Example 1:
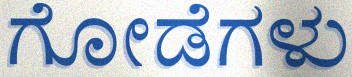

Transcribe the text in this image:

ಗೋಡೆಗಳು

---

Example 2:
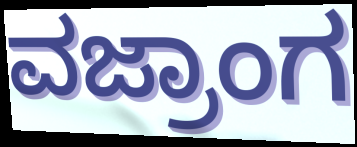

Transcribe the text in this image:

ವಜ್ರಾಂಗ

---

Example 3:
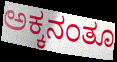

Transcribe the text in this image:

ಅಕ್ಕನಂತೂ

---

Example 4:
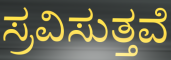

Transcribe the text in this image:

ಸ್ರವಿಸುತ್ತವೆ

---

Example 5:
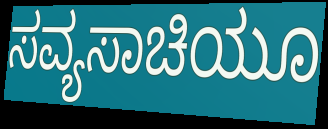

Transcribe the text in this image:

ಸವ್ಯಸಾಚಿಯೂ